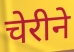
चेरीने